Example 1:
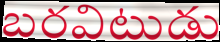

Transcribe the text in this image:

బరవిటుడు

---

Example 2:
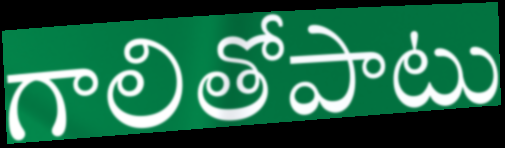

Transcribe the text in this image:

గాలితోపాటు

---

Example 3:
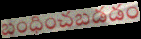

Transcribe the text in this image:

బంధించబడడం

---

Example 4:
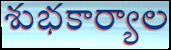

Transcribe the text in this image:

శుభకార్యాల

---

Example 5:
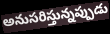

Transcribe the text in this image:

అనుసరిస్తున్నప్పుడు